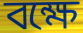
বক্ষে